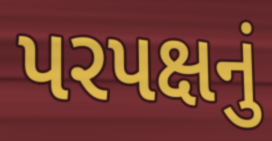
પરપક્ષનું